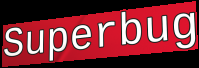
Superbug